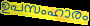
ഉപസംഹാരം